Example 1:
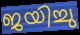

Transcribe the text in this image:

ജയിച്ചു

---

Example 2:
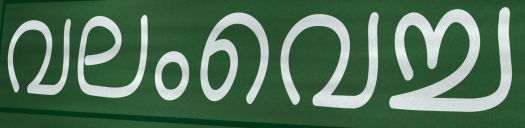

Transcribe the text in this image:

വലംവെച്ച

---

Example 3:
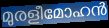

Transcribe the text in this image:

മുരളീമോഹൻ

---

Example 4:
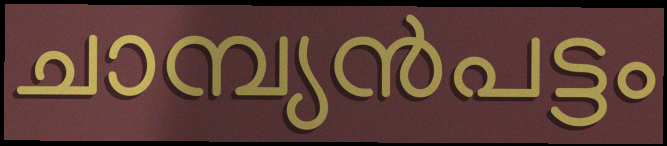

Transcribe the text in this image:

ചാമ്പ്യൻപട്ടം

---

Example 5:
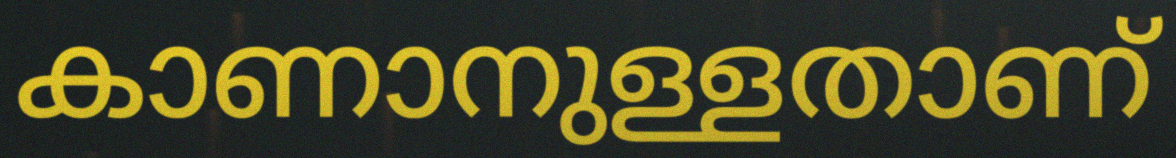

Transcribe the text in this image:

കാണാനുള്ളതാണ്